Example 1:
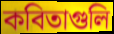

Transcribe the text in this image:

কবিতাগুলি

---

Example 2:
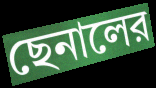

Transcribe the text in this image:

ছেনালের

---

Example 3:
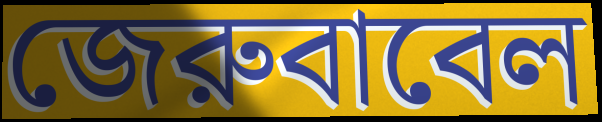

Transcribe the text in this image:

জেরুবাবেল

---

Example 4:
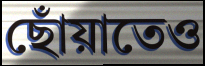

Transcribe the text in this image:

ছোঁয়াতেও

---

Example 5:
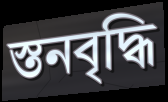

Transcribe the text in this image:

স্তনবৃদ্ধি